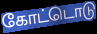
கோட்டொடு